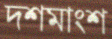
দশমাংশ